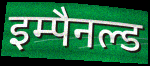
इम्पैनल्ड